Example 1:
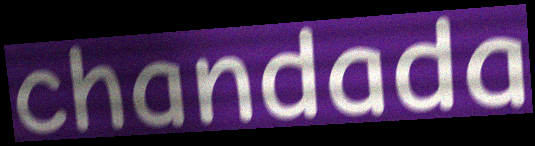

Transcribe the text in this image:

chandada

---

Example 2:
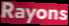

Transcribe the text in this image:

Rayons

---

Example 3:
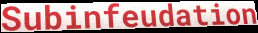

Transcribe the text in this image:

Subinfeudation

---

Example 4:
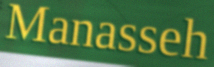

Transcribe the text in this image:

Manasseh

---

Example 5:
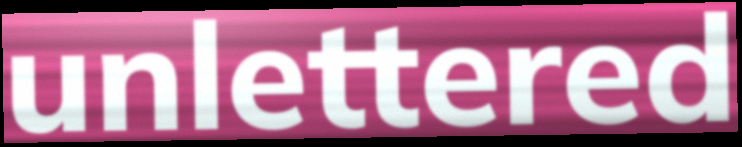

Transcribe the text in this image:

unlettered